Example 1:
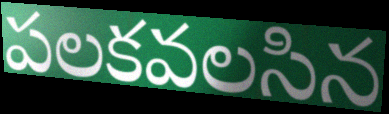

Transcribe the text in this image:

పలకవలసిన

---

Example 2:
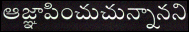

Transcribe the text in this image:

ఆజ్ఞాపించుచున్నానని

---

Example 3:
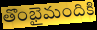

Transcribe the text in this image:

తొంభైమందికి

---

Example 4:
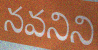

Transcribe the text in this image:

నవనిని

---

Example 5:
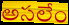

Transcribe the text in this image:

అసలేం